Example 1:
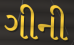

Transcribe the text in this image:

ગીની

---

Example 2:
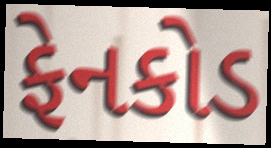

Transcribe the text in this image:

ફેનકોડ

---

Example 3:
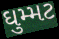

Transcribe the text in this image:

ઘુમ્મટ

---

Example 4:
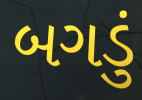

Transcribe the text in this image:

બગડું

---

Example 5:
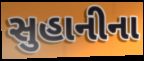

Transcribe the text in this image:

સુહાનીના